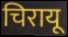
चिरायू